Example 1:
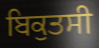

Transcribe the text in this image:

ਬਿਕੁਤਸੀ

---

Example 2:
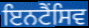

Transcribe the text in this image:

ਇਨਟੈਂਸਿਵ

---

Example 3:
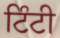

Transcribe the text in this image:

ਟਿੰਟੀ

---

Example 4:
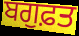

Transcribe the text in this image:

ਬਗੁਫ਼ਤ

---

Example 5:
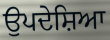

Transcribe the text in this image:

ਉਪਦੇਸ਼ਿਆ